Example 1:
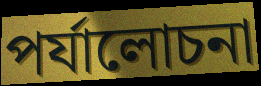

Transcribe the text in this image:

পর্যালোচনা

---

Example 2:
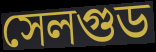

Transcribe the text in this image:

সেলগুড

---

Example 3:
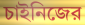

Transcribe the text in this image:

চাইনিজের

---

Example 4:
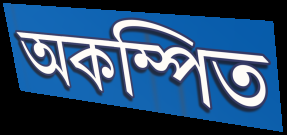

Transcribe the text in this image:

অকম্পিত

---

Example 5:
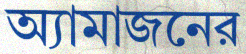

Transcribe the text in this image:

অ্যামাজনের